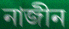
নাজীন